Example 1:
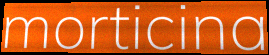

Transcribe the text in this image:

morticina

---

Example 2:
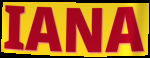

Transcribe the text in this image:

IANA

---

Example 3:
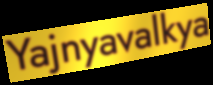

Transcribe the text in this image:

Yajnyavalkya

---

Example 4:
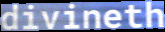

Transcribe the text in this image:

divineth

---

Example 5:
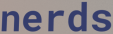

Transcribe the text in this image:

nerds